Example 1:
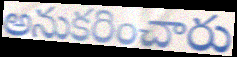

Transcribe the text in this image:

అనుకరించారు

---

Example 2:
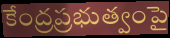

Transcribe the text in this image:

కేంద్రప్రభుత్వంపై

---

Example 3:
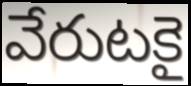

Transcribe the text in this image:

వేరుటకై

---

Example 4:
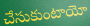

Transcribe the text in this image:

చేసుకుంటాయో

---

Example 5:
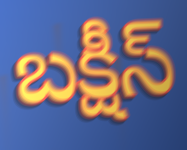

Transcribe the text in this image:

బక్షీస్